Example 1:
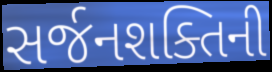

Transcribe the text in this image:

સર્જનશક્તિની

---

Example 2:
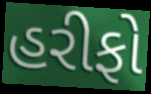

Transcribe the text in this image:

હરીફો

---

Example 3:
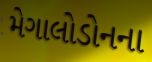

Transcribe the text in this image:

મેગાલોડોનના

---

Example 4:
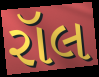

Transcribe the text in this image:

રૉલ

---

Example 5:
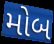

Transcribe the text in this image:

મોબ